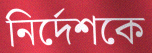
নির্দেশকে